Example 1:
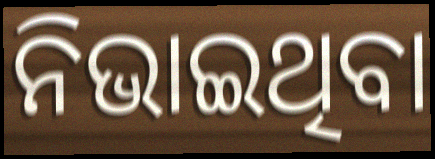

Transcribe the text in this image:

ନିଭାଇଥିବା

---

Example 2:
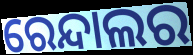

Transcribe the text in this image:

ରେନ୍ଦାଲର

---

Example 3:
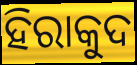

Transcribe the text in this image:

ହିରାକୁଦ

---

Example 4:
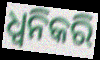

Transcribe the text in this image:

ଧ୍ୱନିକରି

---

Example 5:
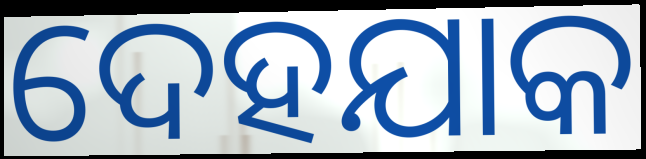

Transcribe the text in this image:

ଦେହଯାକ